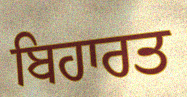
ਬਿਹਾਰਤ